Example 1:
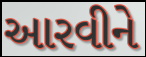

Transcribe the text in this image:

આરવીને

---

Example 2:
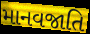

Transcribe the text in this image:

માનવજાતિ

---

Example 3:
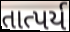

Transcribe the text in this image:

તાત્પર્ય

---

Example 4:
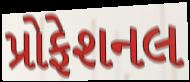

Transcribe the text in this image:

પ્રોફેશનલ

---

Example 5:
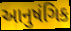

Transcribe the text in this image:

આનુષંગિક